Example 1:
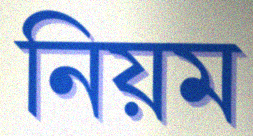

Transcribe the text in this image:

নিয়ম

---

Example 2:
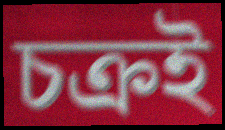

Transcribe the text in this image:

চক্ৰই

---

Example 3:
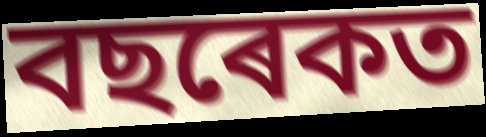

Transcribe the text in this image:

বছৰেকত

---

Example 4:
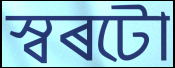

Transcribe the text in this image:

স্বৰটো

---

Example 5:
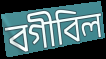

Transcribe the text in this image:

বগীবিল